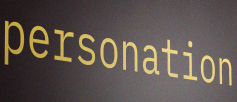
personation